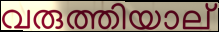
വരുത്തിയാല്